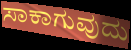
ಸಾಕಾಗುವುದು